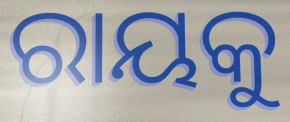
ରାୟକୁ